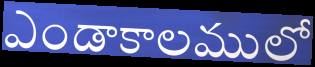
ఎండాకాలములో